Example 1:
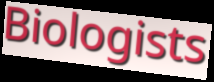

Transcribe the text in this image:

Biologists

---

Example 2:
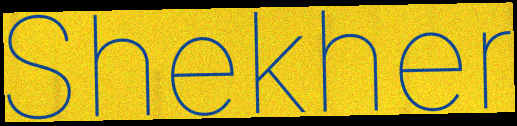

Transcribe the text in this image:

Shekher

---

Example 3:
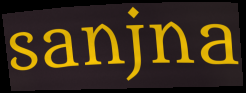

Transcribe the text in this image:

sanjna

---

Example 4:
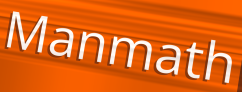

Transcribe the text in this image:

Manmath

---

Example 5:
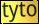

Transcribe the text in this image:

tyto